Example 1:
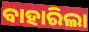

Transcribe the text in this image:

ବାହାରିଲା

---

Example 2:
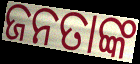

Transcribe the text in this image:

ଜନତାଙ୍କ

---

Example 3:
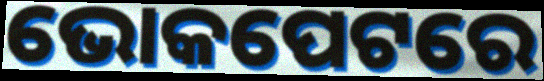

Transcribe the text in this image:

ଭୋକପେଟରେ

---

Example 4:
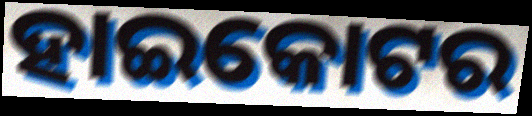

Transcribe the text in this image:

ହାଇକୋଟର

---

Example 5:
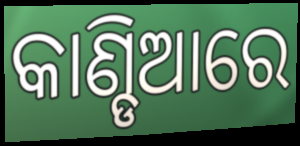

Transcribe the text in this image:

କାଣ୍ଡିଆରେ